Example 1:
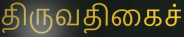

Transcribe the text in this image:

திருவதிகைச்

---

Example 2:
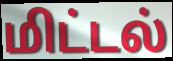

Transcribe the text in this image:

மிட்டல்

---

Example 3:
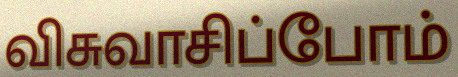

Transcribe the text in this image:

விசுவாசிப்போம்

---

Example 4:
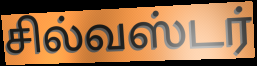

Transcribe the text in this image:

சில்வஸ்டர்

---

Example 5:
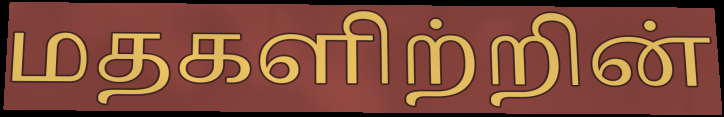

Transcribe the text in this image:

மதகளிற்றின்